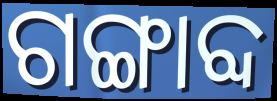
ଗଙ୍ଗାବ୍ଦ